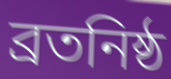
ব্রতনিষ্ঠ